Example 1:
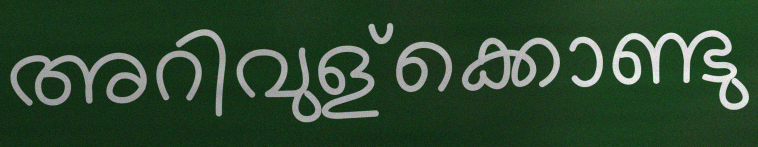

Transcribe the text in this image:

അറിവുള്ക്കൊണ്ടു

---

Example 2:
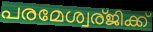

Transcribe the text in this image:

പരമേശ്വര്ജിക്ക്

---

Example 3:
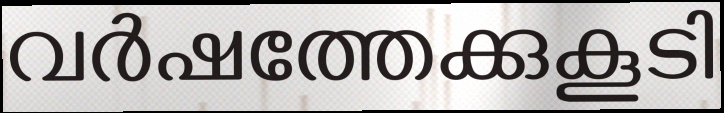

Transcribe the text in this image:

വർഷത്തേക്കുകൂടി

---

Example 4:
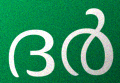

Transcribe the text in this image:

ദർ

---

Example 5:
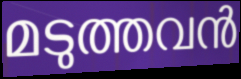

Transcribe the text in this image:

മടുത്തവൻ